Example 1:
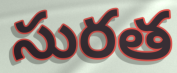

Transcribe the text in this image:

సురత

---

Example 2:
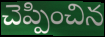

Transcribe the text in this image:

చెప్పించిన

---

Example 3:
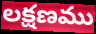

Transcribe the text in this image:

లక్షణము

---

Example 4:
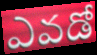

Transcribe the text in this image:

ఎవడో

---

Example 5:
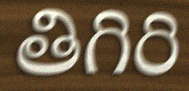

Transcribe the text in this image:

తిగిరి